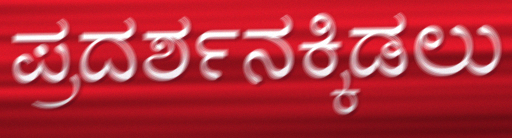
ಪ್ರದರ್ಶನಕ್ಕಿಡಲು